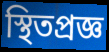
স্থিতপ্রজ্ঞ